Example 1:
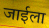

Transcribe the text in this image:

जाईला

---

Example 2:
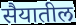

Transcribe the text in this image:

सैयातील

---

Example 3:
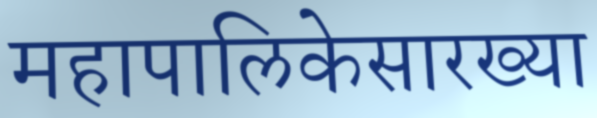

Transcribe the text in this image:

महापालिकेसारख्या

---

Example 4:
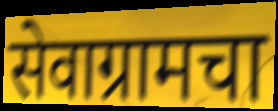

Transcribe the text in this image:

सेवाग्रामचा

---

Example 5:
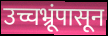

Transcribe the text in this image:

उच्चभ्रूंपासून